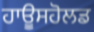
ਹਾਊਸਹੋਲਡ